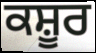
ਕਸ਼ੂਰ